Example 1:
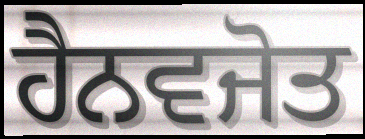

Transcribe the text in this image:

ਹੈਨਵਜੋਤ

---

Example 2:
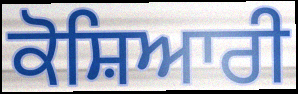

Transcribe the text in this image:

ਕੋਸ਼ਿਆਰੀ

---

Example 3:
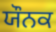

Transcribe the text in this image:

ਯੌਨਕ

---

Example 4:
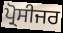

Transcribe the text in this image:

ਪ੍ਰੋਸੀਜਰ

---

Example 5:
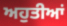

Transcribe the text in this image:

ਅਹੁਤੀਆਂ